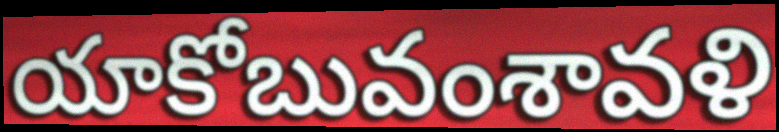
యాకోబువంశావళి